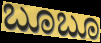
ಬೂಬೂ